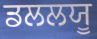
ਡਲਲਯੂ